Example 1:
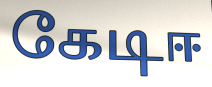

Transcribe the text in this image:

கேடிஈ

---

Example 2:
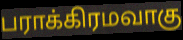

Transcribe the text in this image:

பராக்கிரமவாகு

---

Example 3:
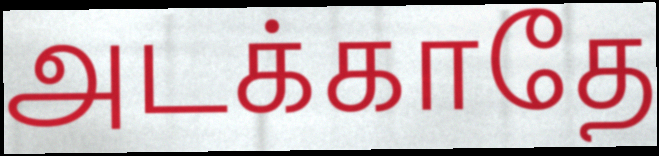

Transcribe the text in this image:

அடக்காதே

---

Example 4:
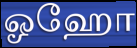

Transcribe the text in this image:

ஓஹோ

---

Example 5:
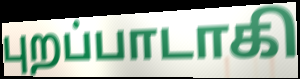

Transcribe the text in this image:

புறப்பாடாகி